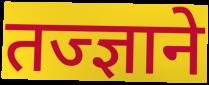
तज्ज्ञाने